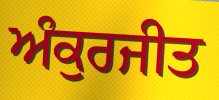
ਅੰਕੁਰਜੀਤ